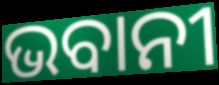
ଭବାନୀ